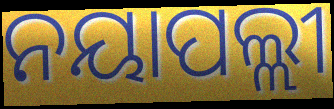
ନୟାପଲ୍ଲୀ